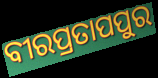
ବୀରପ୍ରତାପପୁର